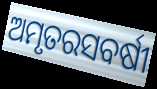
ଅମୃତରସବର୍ଷୀ